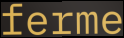
ferme